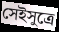
সেইসুত্রে